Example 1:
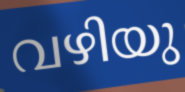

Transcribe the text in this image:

വഴിയു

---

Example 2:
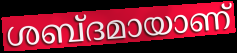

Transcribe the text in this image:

ശബ്ദമായാണ്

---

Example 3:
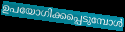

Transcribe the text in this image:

ഉപയോഗിക്കപ്പെടുമ്പോൾ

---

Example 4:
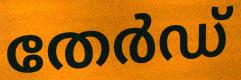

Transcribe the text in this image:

തേർഡ്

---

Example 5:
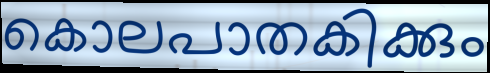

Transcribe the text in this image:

കൊലപാതകിക്കും